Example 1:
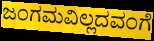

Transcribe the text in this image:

ಜಂಗಮವಿಲ್ಲದವಂಗೆ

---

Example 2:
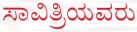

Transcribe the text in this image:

ಸಾವಿತ್ರಿಯವರು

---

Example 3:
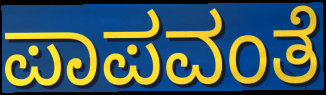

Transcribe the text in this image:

ಪಾಪವಂತೆ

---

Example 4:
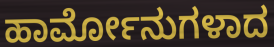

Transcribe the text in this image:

ಹಾರ್ಮೋನುಗಳಾದ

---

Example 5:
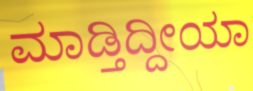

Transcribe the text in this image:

ಮಾಡ್ತಿದ್ದೀಯಾ